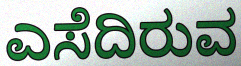
ಎಸೆದಿರುವ